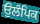
ਉਲੰਪਿਕ